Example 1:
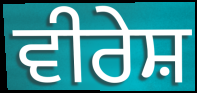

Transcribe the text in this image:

ਵੀਰੇਸ਼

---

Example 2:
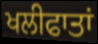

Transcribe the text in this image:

ਖਲੀਫਾਤਾਂ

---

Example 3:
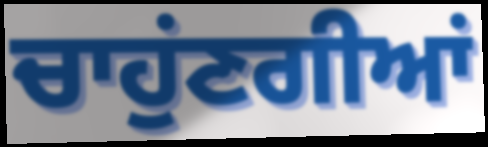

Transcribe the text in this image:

ਚਾਹੁਂਣਗੀਆਂ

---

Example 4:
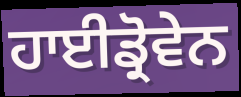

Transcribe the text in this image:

ਹਾਈਡ੍ਰੋਵੇਨ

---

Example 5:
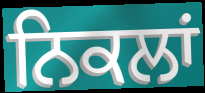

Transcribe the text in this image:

ਨਿਕਲਾਂ